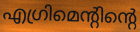
എഗ്രിമെന്റിന്റെ